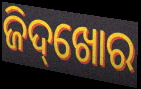
ଜିଦ୍‌ଖୋର